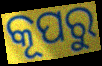
କୂପରୁ